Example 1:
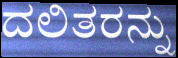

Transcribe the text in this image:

ದಲಿತರನ್ನು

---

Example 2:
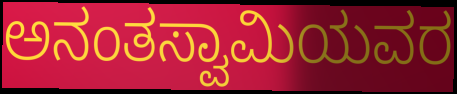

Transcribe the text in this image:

ಅನಂತಸ್ವಾಮಿಯವರ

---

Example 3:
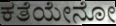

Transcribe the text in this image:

ಕತೆಯೇನೋ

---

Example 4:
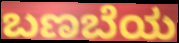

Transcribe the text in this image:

ಬಣಬೆಯ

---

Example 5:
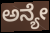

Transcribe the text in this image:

ಅನ್ಯೇ